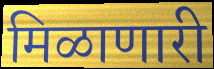
मिळाणारी